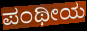
ಪಂಥೀಯ